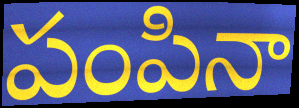
పంపినా